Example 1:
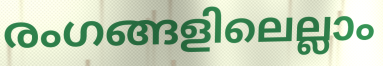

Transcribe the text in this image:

രംഗങ്ങളിലെല്ലാം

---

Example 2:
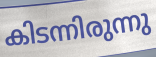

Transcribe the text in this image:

കിടന്നിരുന്നു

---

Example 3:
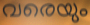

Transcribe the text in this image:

വരെയും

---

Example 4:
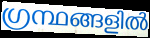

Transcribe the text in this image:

ഗ്രന്ഥങ്ങളിൽ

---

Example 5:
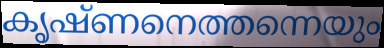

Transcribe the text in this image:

കൃഷ്ണനെത്തന്നെയും